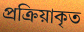
প্রক্রিয়াকৃত